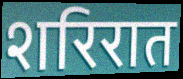
शरिरात